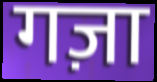
गज़ा